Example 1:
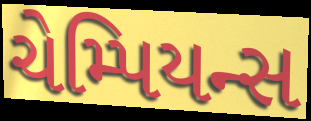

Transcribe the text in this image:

ચેમ્પિયન્સ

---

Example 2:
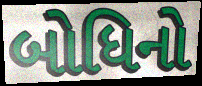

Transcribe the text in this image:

બોધિનો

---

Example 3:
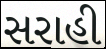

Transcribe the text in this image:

સરાહી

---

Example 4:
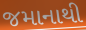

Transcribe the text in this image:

જમાનાથી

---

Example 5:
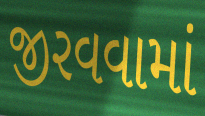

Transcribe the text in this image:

જીરવવામાં